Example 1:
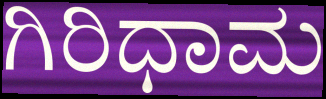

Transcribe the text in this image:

ಗಿರಿಧಾಮ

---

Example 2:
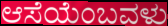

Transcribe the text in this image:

ಆಸೆಯೆಂಬವಳು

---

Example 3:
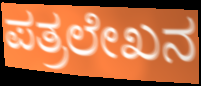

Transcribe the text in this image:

ಪತ್ರಲೇಖನ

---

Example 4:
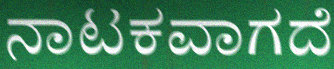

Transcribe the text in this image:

ನಾಟಕವಾಗದೆ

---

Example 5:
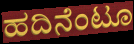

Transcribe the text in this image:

ಹದಿನೆಂಟೂ